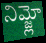
నిమ్జ్లో